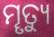
ମୄତ୍ୟୁ